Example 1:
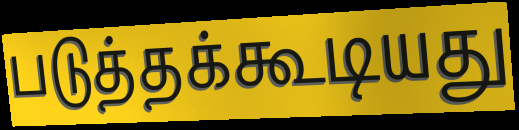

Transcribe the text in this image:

படுத்தக்கூடியது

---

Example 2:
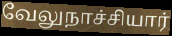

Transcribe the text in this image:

வேலுநாச்சியார்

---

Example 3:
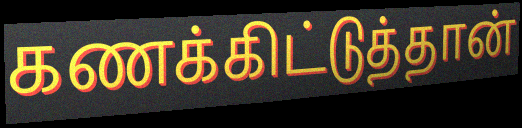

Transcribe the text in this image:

கணக்கிட்டுத்தான்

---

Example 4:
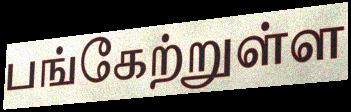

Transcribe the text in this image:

பங்கேற்றுள்ள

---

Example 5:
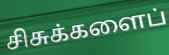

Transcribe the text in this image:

சிசுக்களைப்